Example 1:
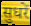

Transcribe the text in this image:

सुधरें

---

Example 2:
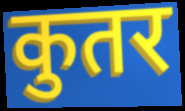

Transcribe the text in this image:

कुतर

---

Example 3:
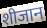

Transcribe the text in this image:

शीजान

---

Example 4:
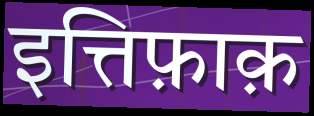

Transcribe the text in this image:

इत्तिफ़ाक़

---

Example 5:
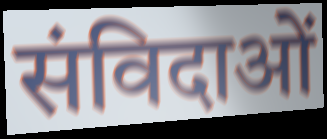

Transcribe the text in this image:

संविदाओं